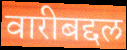
वारीबद्दल